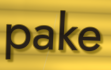
pake